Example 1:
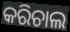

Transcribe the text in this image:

କରିଚାଲ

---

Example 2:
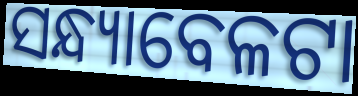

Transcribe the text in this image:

ସନ୍ଧ୍ୟାବେଳଟା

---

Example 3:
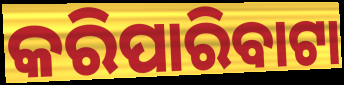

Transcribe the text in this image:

କରିପାରିବାଟା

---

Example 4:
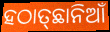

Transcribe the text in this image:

ହଠାତ୍‌ଛାନିଆଁ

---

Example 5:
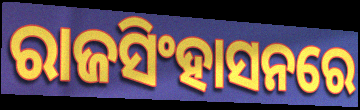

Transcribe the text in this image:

ରାଜସିଂହାସନରେ